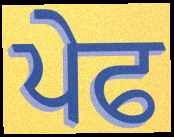
ਪੇਫ